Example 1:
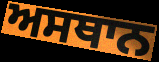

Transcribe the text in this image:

ਅਸਥਾਨ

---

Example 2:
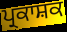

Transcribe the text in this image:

ਪ੍ਰਕਾਸ਼ਕ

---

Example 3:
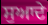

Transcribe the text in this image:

ਸੁਆਦੇ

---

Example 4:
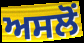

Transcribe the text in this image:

ਅਸਲੋਂ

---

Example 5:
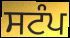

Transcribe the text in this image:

ਸਟੰਪ